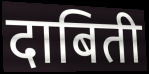
दाबिती